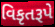
વિકૃતરૂપે